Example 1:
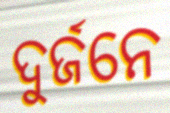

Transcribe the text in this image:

ଦୁର୍ଜନେ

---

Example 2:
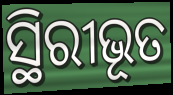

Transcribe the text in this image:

ସ୍ଥିରୀଭୂତ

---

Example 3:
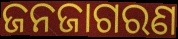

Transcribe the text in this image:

ଜନଜାଗରଣ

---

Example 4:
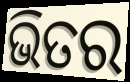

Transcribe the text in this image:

ଭିତର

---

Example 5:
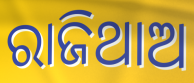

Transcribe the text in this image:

ରାଜିଥାଅ